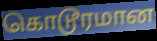
கொடூரமான